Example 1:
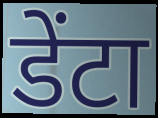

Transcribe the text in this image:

डेंटा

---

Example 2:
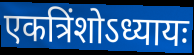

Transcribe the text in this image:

एकत्रिंशोऽध्यायः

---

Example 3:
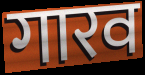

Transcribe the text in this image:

गारव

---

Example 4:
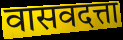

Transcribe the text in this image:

वासवदत्ता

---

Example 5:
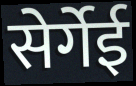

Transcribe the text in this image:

सेर्गेई